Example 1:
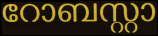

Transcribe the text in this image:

റോബസ്റ്റാ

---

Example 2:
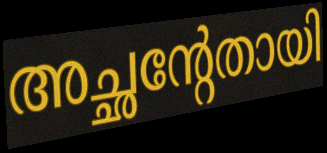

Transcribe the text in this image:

അച്ഛന്റേതായി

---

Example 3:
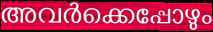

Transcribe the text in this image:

അവർക്കെപ്പോഴും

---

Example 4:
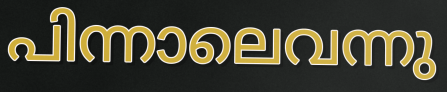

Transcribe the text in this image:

പിന്നാലെവന്നു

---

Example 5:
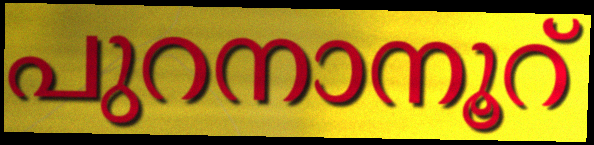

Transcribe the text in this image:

പുറനാനൂറ്